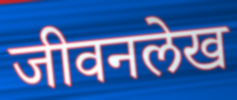
जीवनलेख